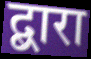
द्बारा